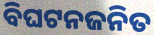
ବିଘଟନଜନିତ